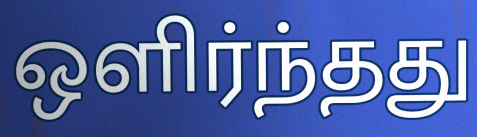
ஒளிர்ந்தது